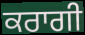
ਕਰਾਗੀ